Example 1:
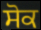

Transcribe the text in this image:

ਸੋਕ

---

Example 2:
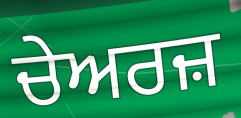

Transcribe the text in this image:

ਚੇਅਰਜ਼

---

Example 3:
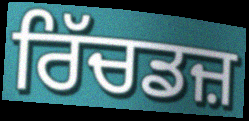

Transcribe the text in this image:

ਰਿੱਚਡਜ਼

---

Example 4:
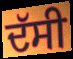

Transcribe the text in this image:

ਦੱਸੀ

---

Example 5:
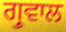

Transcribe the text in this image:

ਗ੍ਰੁਵਾਲ